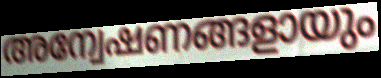
അന്വേഷണങ്ങളായും